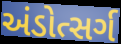
અંડોત્સર્ગ